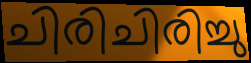
ചിരിചിരിച്ചു